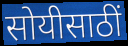
सोयीसाठीं